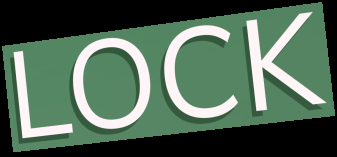
LOCK